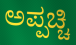
ಅಪ್ಪಚ್ಚಿ